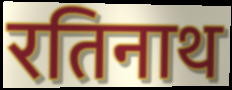
रतिनाथ